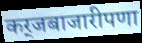
कर्जबाजारीपणा